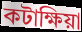
কটাক্ষিয়া